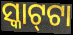
ସ୍କାଟ୍‌ଟା